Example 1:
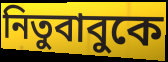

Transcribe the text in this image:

নিতুবাবুকে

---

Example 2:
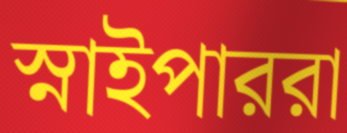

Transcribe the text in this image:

স্নাইপাররা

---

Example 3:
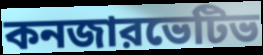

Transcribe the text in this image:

কনজারভেটিভ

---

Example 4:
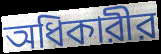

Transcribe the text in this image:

অধিকারীর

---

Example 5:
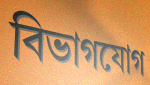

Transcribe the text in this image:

বিভাগযোগ